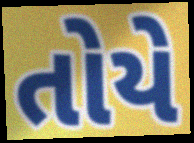
તોયે